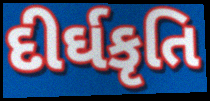
દીર્ઘકૃતિ